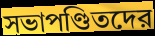
সভাপণ্ডিতদের